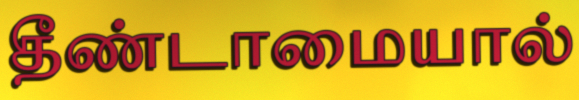
தீண்டாமையால்